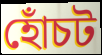
হোঁচট